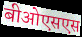
बीओएसएस